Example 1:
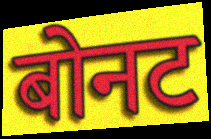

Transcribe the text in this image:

बोनट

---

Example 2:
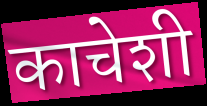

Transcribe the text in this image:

काचेशी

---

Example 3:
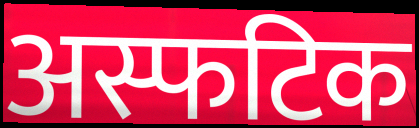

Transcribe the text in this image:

अस्फटिक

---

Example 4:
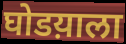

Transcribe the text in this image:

घोडय़ाला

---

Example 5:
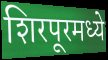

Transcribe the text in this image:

शिरपूरमध्ये